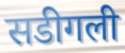
सडीगली